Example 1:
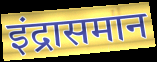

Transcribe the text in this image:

इंद्रासमान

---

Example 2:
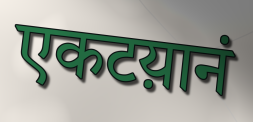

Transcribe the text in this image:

एकटय़ानं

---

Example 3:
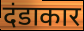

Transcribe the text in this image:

दंडाकार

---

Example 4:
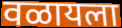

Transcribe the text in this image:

वळायला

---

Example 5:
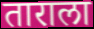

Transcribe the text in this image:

ताराला